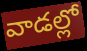
వాడల్లో